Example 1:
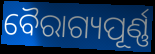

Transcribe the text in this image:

ବୈରାଗ୍ୟପୂର୍ଣ୍ଣ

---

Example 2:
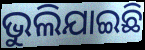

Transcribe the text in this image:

ଭୁଲିଯାଇଛି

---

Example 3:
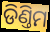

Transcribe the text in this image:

ଡିଣ୍ତିମ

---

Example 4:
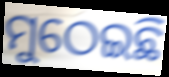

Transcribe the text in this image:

ମୁଠେଇଛି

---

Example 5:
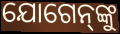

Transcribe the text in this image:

ଯୋଗେନ୍‌ଙ୍କୁ